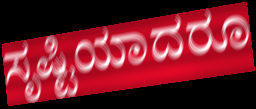
ಸೃಷ್ಟಿಯಾದರೂ